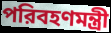
পরিবহণমন্ত্রী